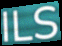
ILS